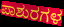
ಪಾಶುರಗಳ